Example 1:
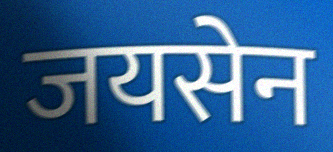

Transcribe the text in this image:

जयसेन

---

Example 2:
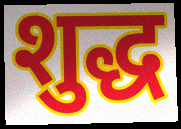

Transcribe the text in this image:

शुद्ध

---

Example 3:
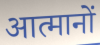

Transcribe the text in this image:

आत्मानों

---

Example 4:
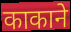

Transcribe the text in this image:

काकाने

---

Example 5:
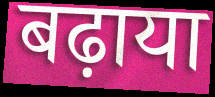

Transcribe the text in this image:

बढ़ाया